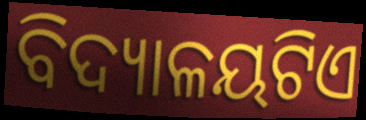
ବିଦ୍ୟାଳୟଟିଏ